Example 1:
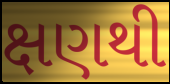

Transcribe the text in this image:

ક્ષણથી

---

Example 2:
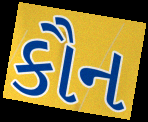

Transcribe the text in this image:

કૌન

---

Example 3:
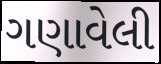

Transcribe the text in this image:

ગણાવેલી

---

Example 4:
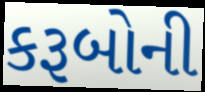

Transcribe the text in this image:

કરૂબોની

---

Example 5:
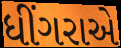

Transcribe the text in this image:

ધીંગરાએ